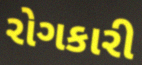
રોગકારી